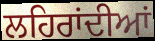
ਲਹਿਰਾਂਦੀਆਂ